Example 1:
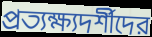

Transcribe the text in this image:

প্রত্যক্ষ্যদর্শীদের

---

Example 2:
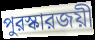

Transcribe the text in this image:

পুরস্কারজয়ী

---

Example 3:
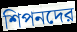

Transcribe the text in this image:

শিপনদের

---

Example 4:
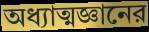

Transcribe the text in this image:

অধ্যাত্মজ্ঞানের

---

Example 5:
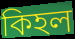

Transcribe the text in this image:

কিহল